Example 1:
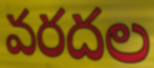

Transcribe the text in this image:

వరదల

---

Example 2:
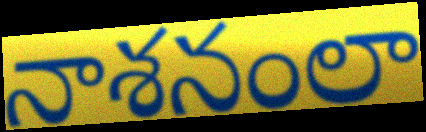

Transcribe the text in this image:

నాశనంలా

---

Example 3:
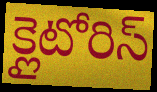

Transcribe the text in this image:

క్లైటోరిస్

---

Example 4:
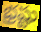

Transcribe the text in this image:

భ్రష్టు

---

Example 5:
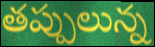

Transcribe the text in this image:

తప్పులున్న